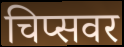
चिप्सवर